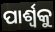
ପାର୍ଶ୍ଵକୁ